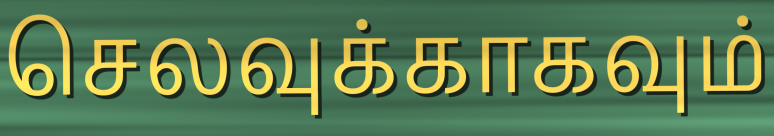
செலவுக்காகவும்